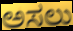
ಅಸಲು